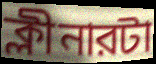
ক্লীনারটা